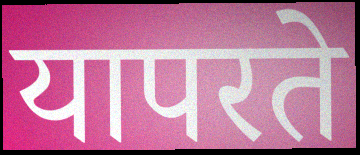
यापरते